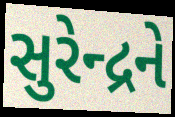
સુરેન્દ્રને